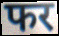
फर